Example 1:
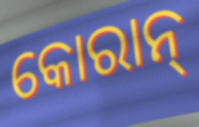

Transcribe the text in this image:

କୋରାନ୍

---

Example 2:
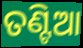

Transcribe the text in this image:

ତଣ୍ଟିଆ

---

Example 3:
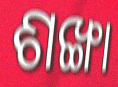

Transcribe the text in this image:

ଶଙ୍ଖା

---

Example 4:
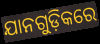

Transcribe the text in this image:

ଯାନଗୁଡ଼ିକରେ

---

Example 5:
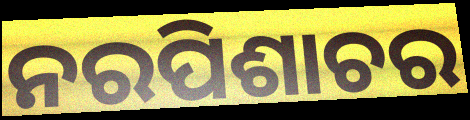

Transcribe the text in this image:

ନରପିଶାଚର